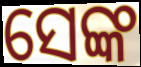
ସେଙ୍କ